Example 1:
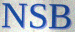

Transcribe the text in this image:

NSB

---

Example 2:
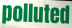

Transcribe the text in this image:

polluted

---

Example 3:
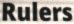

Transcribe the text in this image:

Rulers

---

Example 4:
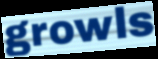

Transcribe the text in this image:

growls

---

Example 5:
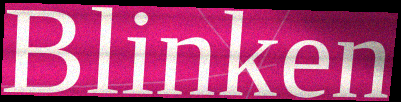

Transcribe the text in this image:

Blinken